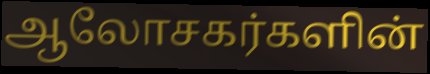
ஆலோசகர்களின்